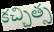
కచ్చిత్స